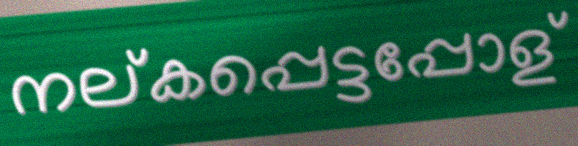
നല്കപ്പെട്ടപ്പോള്